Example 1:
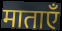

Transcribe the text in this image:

माताएँ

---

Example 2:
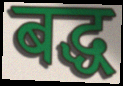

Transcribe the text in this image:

बद्ध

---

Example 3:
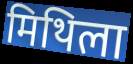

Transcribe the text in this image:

मिथिला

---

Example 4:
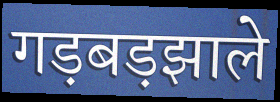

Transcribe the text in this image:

गड़बड़झाले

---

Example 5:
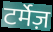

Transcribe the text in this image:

टर्मेज़